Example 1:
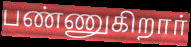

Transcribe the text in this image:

பண்ணுகிறார்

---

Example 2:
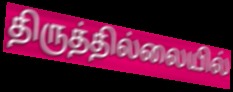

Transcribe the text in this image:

திருத்தில்லையில்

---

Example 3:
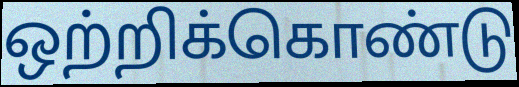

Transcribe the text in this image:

ஒற்றிக்கொண்டு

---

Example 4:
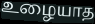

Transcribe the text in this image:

உழையாத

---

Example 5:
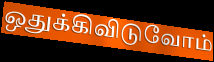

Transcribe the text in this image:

ஒதுக்கிவிடுவோம்